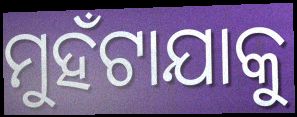
ମୁହଁଟାଯାକୁ